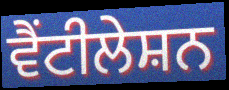
ਵੈਂਟੀਲੇਸ਼ਨ